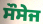
ਸੌਸੇਜ